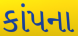
કાંપના